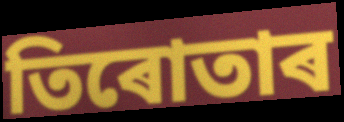
তিৰোতাৰ